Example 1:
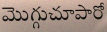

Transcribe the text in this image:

మొగ్గుచూపారో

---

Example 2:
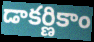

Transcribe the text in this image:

డాకర్ణికాం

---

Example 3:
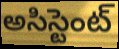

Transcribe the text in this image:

అసిస్టెంట్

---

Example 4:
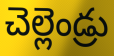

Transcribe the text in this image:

చెల్లెండ్రు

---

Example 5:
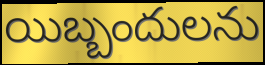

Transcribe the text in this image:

యిబ్బందులను